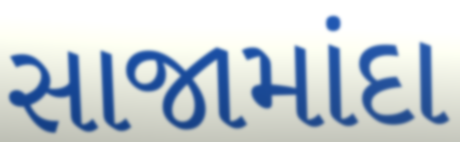
સાજામાંદા